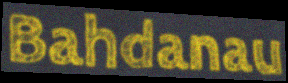
Bahdanau